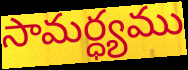
సామర్ధ్యము